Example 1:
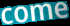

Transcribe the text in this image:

come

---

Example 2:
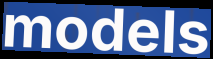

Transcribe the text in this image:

models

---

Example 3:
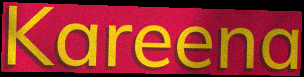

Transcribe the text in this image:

Kareena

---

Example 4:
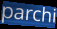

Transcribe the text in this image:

parchi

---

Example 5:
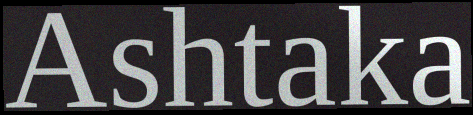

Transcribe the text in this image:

Ashtaka